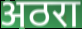
अठरा